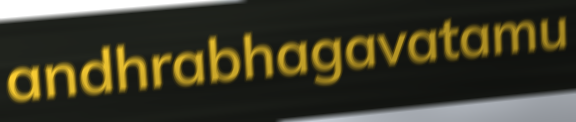
andhrabhagavatamu